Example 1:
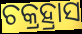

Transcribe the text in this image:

ଚକ୍ରହ୍ରାସ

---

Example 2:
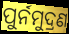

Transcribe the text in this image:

ପୁର୍ନମୁଦ୍ରଣ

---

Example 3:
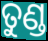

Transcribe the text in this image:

ତୁଣ୍ଡ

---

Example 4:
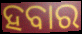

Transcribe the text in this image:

ହବାର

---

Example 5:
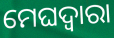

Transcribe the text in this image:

ମେଘଦ୍ୱାରା